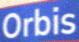
Orbis